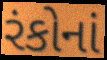
રંકોનાં